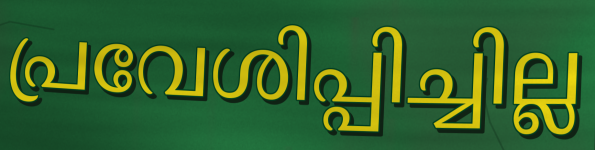
പ്രവേശിപ്പിച്ചില്ല